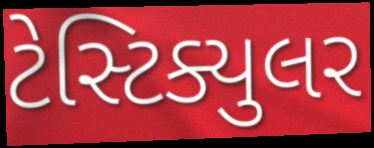
ટેસ્ટિક્યુલર